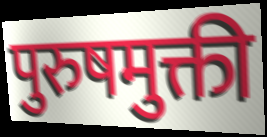
पुरुषमुक्ती